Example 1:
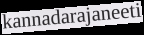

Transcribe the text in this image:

kannadarajaneeti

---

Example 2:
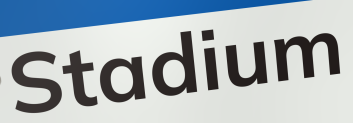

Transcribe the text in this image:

Stadium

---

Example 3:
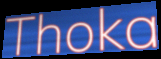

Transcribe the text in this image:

Thoka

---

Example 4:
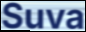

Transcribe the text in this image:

Suva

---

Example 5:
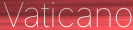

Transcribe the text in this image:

Vaticano